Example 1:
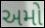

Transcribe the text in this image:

અમો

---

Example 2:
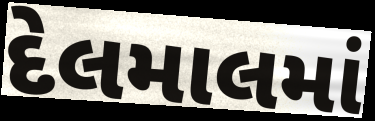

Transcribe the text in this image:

દેલમાલમાં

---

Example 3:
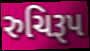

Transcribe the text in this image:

રુચિરૂપ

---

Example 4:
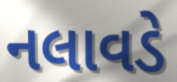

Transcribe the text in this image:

નલાવડે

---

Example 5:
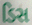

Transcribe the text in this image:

ડિસ